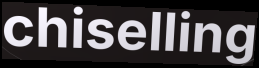
chiselling